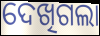
ଦେଖିଗଲା